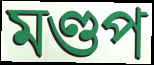
মণ্ডপ